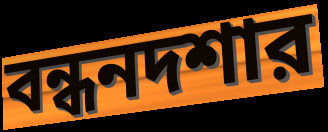
বন্ধনদশার